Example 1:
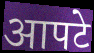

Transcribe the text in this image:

आपटे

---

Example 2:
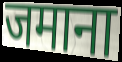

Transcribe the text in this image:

जमाना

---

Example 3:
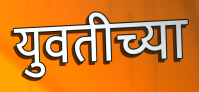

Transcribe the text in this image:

युवतीच्या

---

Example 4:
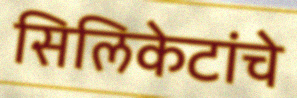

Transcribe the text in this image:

सिलिकेटांचे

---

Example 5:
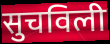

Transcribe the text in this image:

सुचविली